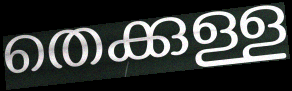
തെക്കുള്ള